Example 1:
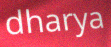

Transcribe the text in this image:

dharya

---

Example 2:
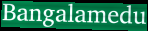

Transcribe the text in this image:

Bangalamedu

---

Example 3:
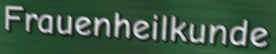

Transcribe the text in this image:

Frauenheilkunde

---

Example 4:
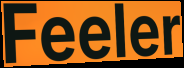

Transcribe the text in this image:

Feeler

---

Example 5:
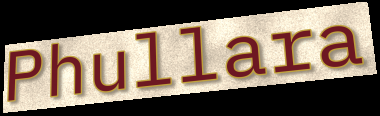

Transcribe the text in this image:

Phullara